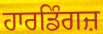
ਹਾਰਡਿੰਗਜ਼